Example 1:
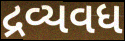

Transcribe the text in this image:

દ્રવ્યવધ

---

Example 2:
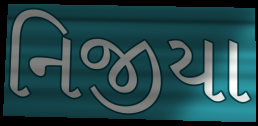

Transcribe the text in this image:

નિજીયા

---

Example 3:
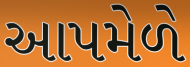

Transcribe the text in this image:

આપમેળે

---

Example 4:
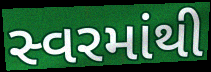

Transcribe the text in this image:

સ્વરમાંથી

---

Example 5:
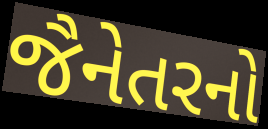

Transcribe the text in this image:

જૈનેતરનો